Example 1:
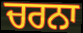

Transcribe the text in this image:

ਚਰਨਾ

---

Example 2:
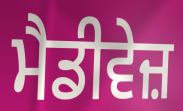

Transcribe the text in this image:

ਮੈਡੀਵੇਜ਼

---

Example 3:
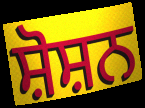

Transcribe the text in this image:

ਸ਼ੋਸ਼ਨ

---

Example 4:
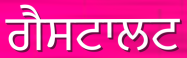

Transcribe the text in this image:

ਗੈਸਟਾਲਟ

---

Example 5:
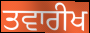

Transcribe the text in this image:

ਤਵਾਰੀਖ